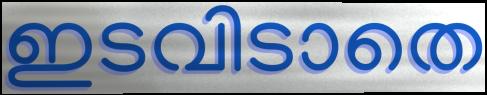
ഇടവിടാതെ